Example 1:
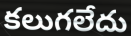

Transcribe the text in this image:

కలుగలేదు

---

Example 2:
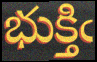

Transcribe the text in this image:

భుక్తిఁ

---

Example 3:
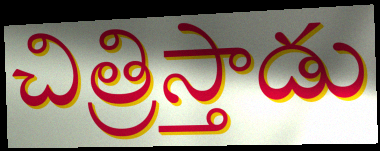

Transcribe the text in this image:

చిత్రిస్తాడు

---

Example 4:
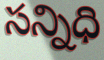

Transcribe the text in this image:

సన్నిధి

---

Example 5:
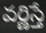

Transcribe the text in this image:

వర్ణిస్తే